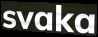
svaka